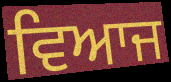
ਵਿਆਜ